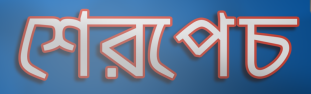
শেরপেচ